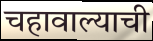
चहावाल्याची